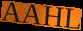
AAHL